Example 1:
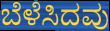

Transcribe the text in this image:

ಬೆಳೆಸಿದವು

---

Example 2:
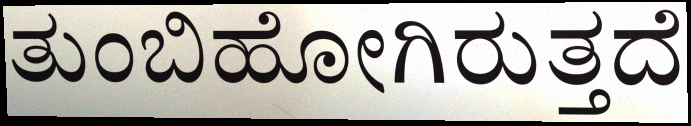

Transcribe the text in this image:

ತುಂಬಿಹೋಗಿರುತ್ತದೆ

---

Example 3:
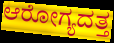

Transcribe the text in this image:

ಆರೋಗ್ಯದತ್ತ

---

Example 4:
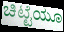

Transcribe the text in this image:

ಚಿಟ್ಟೆಯೂ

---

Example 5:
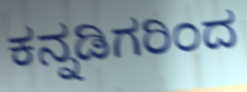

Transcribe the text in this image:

ಕನ್ನಡಿಗರಿಂದ